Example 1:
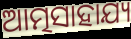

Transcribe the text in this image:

ଆତ୍ମସାହାଯ୍ୟ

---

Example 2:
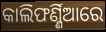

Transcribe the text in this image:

କାଲିଫର୍ଣ୍ଣିଆରେ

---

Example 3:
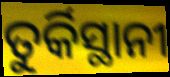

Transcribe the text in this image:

ତୁର୍କିସ୍ଥାନୀ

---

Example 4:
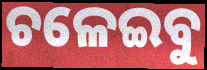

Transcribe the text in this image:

ଚଳେଇବୁ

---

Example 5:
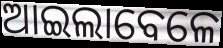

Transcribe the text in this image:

ଆଇଲାବେଳେ